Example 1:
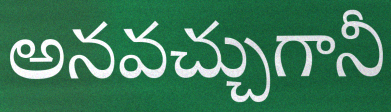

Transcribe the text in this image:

అనవచ్చుగానీ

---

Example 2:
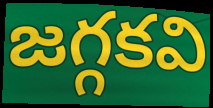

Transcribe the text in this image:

జగ్గకవి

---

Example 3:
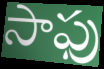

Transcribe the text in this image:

సాఫు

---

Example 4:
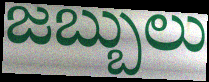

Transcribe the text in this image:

జబ్బులు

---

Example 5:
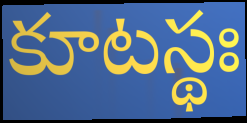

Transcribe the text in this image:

కూటస్థః